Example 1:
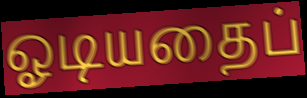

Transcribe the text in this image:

ஓடியதைப்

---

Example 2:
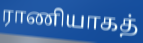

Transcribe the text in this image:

ராணியாகத்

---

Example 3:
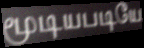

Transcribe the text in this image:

மூடியபடியே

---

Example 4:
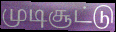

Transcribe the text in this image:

முடிசூட்டு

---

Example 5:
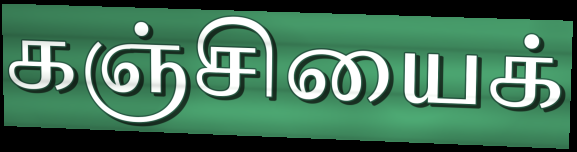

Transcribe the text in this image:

கஞ்சியைக்